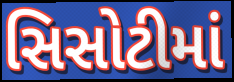
સિસોટીમાં